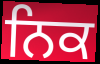
ਨਿਕ